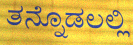
ತನ್ನೊಡಲಲ್ಲಿ